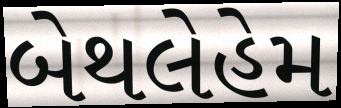
બેથલેહેમ